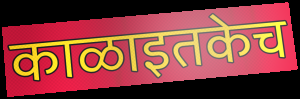
काळाइतकेच